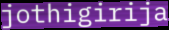
jothigirija